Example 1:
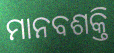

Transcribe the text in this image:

ମାନବଶକ୍ତି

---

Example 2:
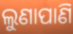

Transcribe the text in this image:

ଲୁଣାପାଣି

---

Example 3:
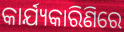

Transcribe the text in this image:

କାର୍ଯ୍ୟକାରିଣିରେ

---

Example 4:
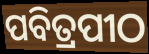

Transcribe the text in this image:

ପବିତ୍ରପୀଠ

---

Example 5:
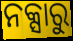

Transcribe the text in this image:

ନକ୍ସାରୁ